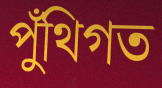
পুঁথিগত